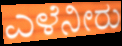
ಎಳೆನೀರು